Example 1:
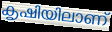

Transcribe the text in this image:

കൃഷിയിലാണ്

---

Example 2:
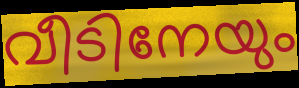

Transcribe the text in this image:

വീടിനേയും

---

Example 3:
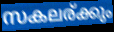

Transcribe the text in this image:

സകലര്ക്കും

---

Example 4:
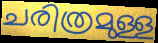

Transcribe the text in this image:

ചരിത്രമുള്ള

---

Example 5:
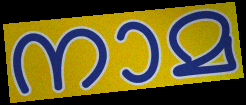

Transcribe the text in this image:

നാമ